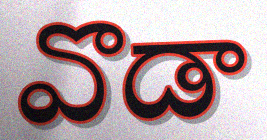
వొడా